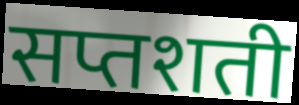
सप्तशती